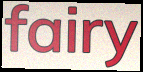
fairy